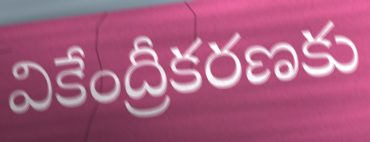
వికేంద్రీకరణకు